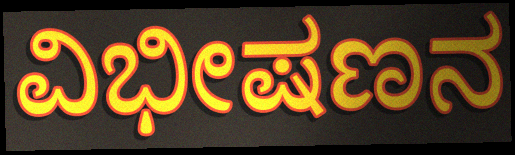
ವಿಭೀಷಣನ